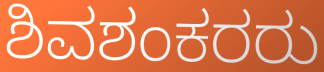
ಶಿವಶಂಕರರು